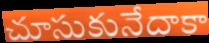
చూసుకునేదాకా